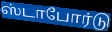
ஸ்டாபோர்டு